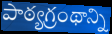
పాఠ్యగ్రంథాన్ని